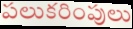
పలుకరింపులు